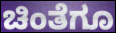
ಚಿಂತೆಗೂ